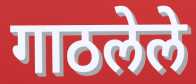
गाठलेले